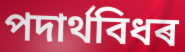
পদাৰ্থবিধৰ